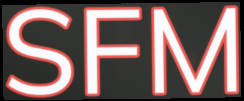
SFM